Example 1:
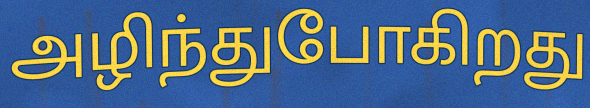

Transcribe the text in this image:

அழிந்துபோகிறது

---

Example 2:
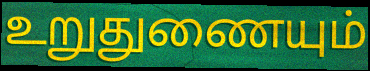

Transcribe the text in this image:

உறுதுணையும்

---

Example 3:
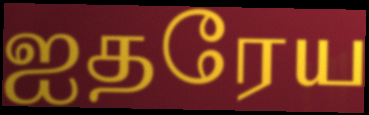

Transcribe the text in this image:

ஐதரேய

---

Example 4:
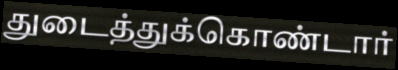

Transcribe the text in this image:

துடைத்துக்கொண்டார்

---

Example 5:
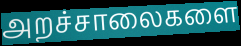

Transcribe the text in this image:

அறச்சாலைகளை